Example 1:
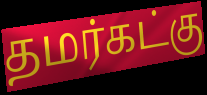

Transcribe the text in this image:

தமர்கட்கு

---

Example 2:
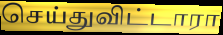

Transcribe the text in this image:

செய்துவிட்டாரா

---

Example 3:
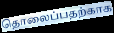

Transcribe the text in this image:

தொலைப்பதற்காக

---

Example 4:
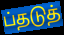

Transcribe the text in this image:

ப்தடுத்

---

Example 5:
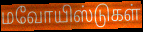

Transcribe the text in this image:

மவோயிஸ்டுகள்